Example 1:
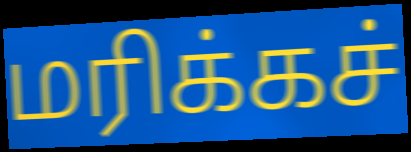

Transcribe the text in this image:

மரிக்கச்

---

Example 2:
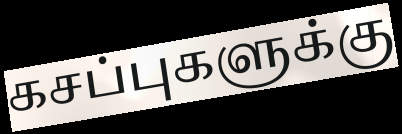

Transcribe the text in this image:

கசப்புகளுக்கு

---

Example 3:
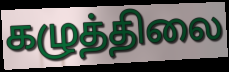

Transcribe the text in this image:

கழுத்திலை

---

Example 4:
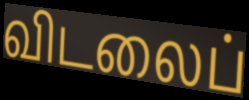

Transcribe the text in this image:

விடலைப்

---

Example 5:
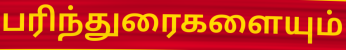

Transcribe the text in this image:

பரிந்துரைகளையும்